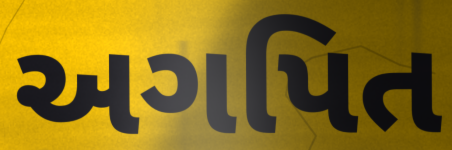
અગપિત